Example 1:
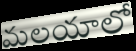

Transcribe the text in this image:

మలయాలో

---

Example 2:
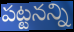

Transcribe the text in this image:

పట్టనన్ని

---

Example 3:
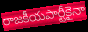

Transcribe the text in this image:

రాజకీయపార్టీకైనా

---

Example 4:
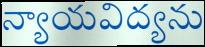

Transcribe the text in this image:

న్యాయవిద్యను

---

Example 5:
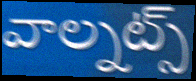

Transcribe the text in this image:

వాల్నట్స్